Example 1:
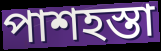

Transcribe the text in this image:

পাশহস্তা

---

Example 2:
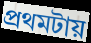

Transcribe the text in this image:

প্রথমটায়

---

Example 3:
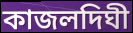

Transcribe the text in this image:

কাজলদিঘী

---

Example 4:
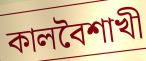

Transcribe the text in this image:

কালবৈশাখী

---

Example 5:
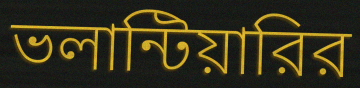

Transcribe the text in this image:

ভলান্টিয়ারির